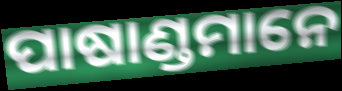
ପାଷାଣ୍ଡମାନେ